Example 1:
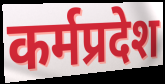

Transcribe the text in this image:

कर्मप्रदेश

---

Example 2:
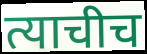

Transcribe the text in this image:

त्याचीच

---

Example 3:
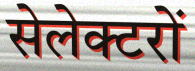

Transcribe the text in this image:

सेलेक्टरों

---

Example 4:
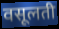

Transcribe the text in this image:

वसूलती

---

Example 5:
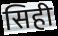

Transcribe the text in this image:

सिही